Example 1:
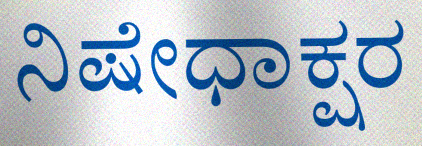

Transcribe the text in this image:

ನಿಷೇಧಾಕ್ಷರ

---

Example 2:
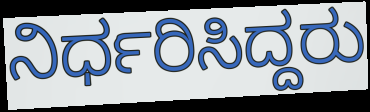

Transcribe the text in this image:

ನಿರ್ಧರಿಸಿದ್ದರು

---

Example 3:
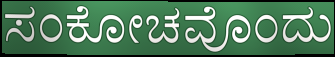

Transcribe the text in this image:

ಸಂಕೋಚವೊಂದು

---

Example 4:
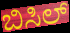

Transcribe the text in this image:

ಬಿಸಿಲ್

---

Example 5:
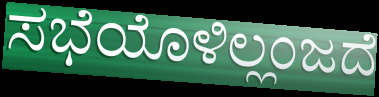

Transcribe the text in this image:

ಸಭೆಯೊಳಿಲ್ಲಂಜದೆ